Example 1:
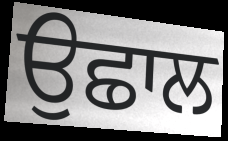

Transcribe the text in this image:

ਉਛਾਲ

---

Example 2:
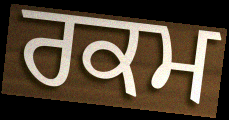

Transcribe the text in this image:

ਰਕਮ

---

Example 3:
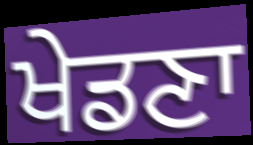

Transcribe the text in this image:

ਖੇਡਣਾ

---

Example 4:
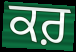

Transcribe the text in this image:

ਕਰ਼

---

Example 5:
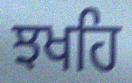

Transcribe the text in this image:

ਝਖਹਿ